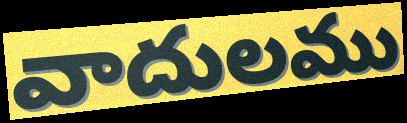
వాదులము